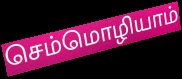
செம்மொழியாம்